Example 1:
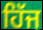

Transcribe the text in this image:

ਹਿੱਜ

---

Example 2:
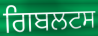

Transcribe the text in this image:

ਗਿਬਲਟਸ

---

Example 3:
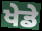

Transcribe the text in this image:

ਖੇਡੇ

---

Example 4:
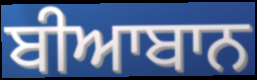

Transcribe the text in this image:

ਬੀਆਬਾਨ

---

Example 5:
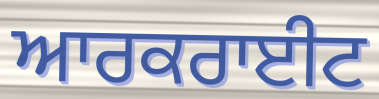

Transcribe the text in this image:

ਆਰਕਰਾਈਟ